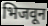
भिजवून